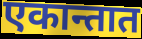
एकान्तात